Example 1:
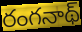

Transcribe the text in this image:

రంగనాథ్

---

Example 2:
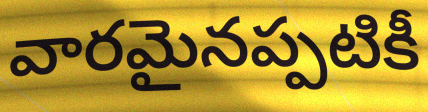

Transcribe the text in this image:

వారమైనప్పటికీ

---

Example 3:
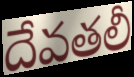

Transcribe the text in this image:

దేవతలీ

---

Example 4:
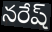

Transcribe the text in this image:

నరేష్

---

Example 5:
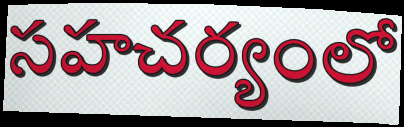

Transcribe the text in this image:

సహచర్యంలో